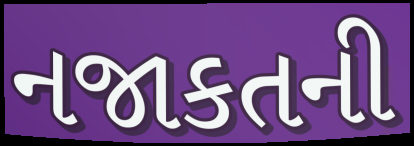
નજાકતની